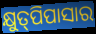
କ୍ଷୁତ୍‍ପିପାସାର